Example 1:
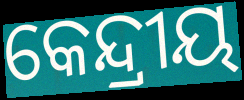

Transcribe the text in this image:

କେନ୍ଦ୍ରୀୟ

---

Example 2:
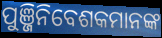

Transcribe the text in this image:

ପୁଞ୍ଜିନିବେଶକମାନଙ୍କ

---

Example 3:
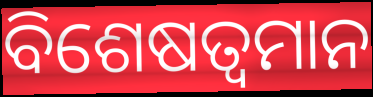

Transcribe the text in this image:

ବିଶେଷତ୍ଵମାନ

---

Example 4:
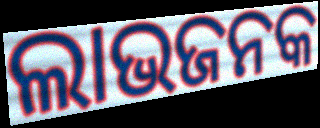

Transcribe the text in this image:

ଲାଭଜନକ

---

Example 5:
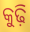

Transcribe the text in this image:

କୁଢ଼ି